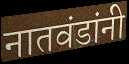
नातवंडांनी